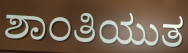
ಶಾಂತಿಯುತ